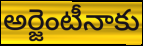
అర్జెంటీనాకు